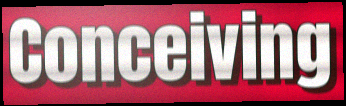
Conceiving